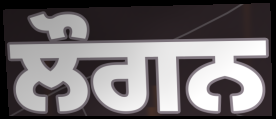
ਲੌਗਨ